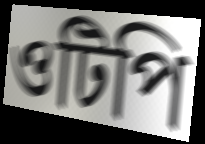
ওটিপি